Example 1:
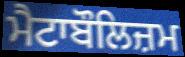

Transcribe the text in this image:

ਮੈਟਾਬੌਲਿਜ਼ਮ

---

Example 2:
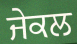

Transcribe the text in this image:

ਜੇਕਲ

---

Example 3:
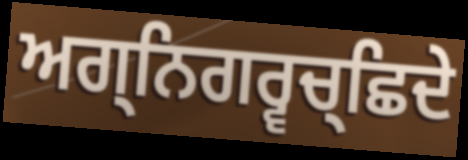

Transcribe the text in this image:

ਅਗ੍ਨਿਗਰ੍ਵਚ੍ਛਿਦੇ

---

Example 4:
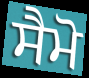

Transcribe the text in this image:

ਸੈਮੋ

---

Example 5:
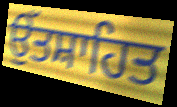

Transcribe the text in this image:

ਉੱਤਸ਼ਾਹਿਤ